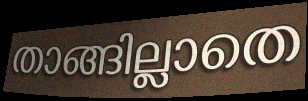
താങ്ങില്ലാതെ